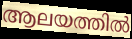
ആലയത്തിൽ